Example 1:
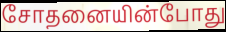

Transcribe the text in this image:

சோதனையின்போது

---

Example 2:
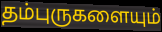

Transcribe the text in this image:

தம்புருகளையும்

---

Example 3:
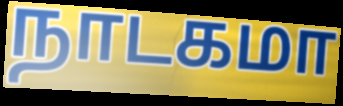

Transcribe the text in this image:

நாடகமா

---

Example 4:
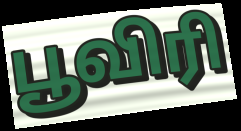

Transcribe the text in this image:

பூவிரி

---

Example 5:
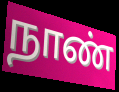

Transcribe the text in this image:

நாண்